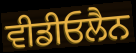
ਵੀਡੀਓਲੈਨ